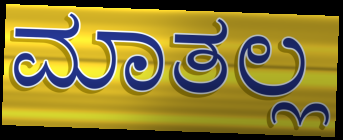
ಮಾತಲ್ಲ